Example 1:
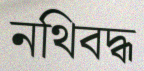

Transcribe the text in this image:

নথিবদ্ধ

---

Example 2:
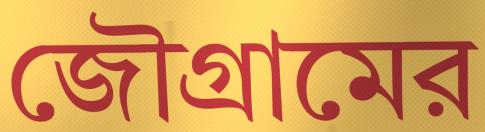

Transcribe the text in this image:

জৌগ্রামের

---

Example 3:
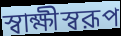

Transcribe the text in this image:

স্বাক্ষীস্বরূপ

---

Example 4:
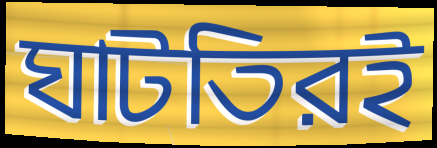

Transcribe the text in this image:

ঘাটতিরই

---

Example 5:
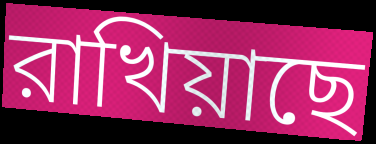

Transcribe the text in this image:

রাখিয়াছে